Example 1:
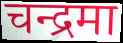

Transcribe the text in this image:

चन्द्रमा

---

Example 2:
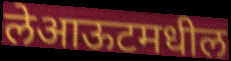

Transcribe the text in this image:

लेआऊटमधील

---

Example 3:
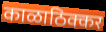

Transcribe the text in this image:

काळाठिक्कर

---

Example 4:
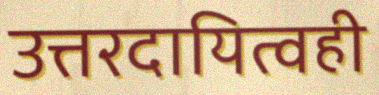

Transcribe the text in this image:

उत्तरदायित्वही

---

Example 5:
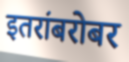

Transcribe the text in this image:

इतरांबरोबर